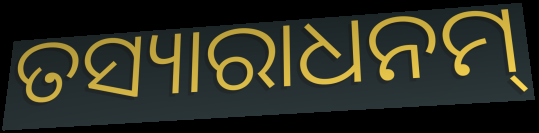
ତସ୍ୟାରାଧନମ୍